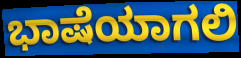
ಭಾಷೆಯಾಗಲಿ